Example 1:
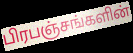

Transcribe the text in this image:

பிரபஞ்சங்களின்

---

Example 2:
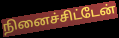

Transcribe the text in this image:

நினைச்சிட்டேன்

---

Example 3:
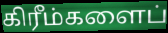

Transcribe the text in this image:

கிரீம்களைப்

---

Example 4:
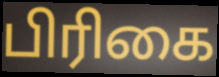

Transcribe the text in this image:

பிரிகை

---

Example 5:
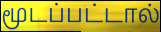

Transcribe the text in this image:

மூடப்பட்டால்